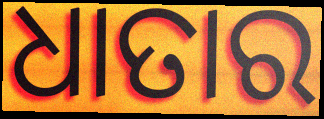
ଧାତାର